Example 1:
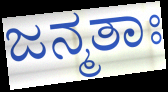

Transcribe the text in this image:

ಜನ್ಮತಾಃ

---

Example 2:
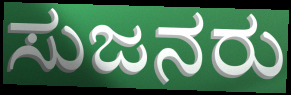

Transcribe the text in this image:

ಸುಜನರು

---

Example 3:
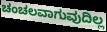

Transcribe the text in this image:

ಚಂಚಲವಾಗುವುದಿಲ್ಲ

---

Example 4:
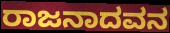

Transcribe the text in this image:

ರಾಜನಾದವನ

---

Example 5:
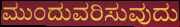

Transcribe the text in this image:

ಮುಂದುವರಿಸುವುದು